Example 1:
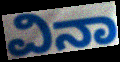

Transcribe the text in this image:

ವಿನಾ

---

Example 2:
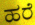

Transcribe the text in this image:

ಹರೆ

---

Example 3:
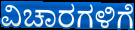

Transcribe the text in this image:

ವಿಚಾರಗಳಿಗೆ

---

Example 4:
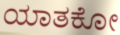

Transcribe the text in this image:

ಯಾತಕೋ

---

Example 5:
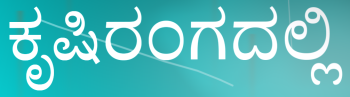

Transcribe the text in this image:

ಕೃಷಿರಂಗದಲ್ಲಿ